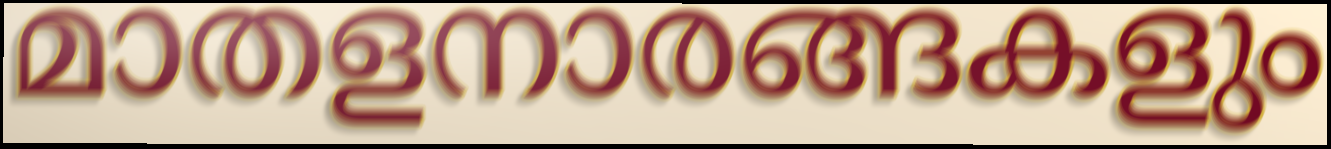
മാതളനാരങ്ങകളും